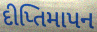
દીપ્તિમાપન